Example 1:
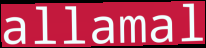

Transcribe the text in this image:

allamal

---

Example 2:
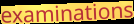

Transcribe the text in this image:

examinations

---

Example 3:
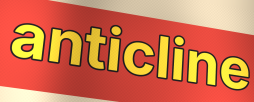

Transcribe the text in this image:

anticline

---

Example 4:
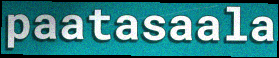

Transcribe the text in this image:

paatasaala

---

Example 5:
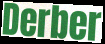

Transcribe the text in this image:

Derber